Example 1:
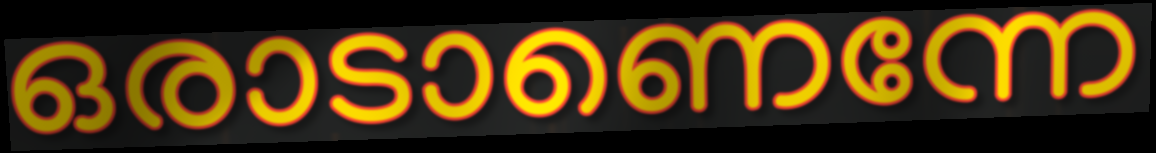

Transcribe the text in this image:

ഒരാടാണെന്നേ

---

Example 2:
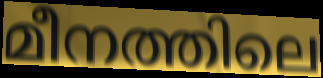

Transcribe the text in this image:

മീനത്തിലെ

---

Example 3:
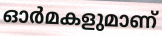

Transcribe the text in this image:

ഓർമകളുമാണ്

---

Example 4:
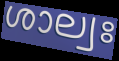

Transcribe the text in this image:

ശാല്വഃ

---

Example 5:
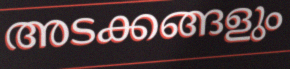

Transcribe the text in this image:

അടക്കങ്ങളും